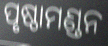
ପୃଷ୍ଠାମଣ୍ଡନ